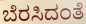
ಬೆರಸಿದಂತೆ